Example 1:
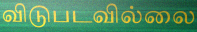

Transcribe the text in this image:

விடுபடவில்லை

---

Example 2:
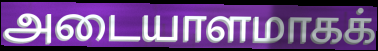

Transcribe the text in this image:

அடையாளமாகக்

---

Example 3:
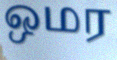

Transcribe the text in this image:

ஒமர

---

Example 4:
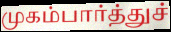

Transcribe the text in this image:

முகம்பார்த்துச்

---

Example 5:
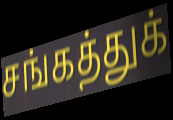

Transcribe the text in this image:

சங்கத்துக்